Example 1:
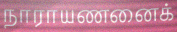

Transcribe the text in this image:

நாராயணனைக்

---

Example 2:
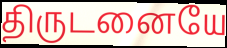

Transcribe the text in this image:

திருடனையே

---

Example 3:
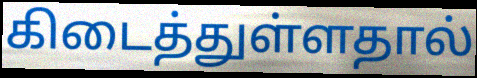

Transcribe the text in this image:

கிடைத்துள்ளதால்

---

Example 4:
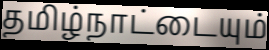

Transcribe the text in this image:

தமிழ்நாட்டையும்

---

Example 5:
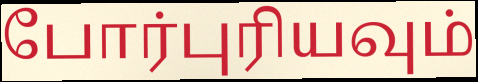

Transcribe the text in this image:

போர்புரியவும்